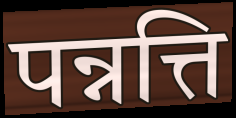
पन्नत्ति